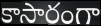
కాసారంగా